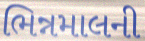
ભિન્નમાલની